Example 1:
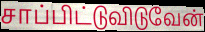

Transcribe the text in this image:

சாப்பிட்டுவிடுவேன்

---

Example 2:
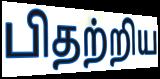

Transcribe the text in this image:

பிதற்றிய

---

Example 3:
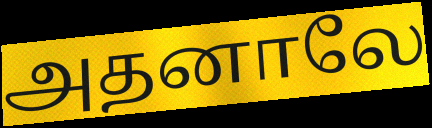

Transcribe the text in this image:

அதனாலே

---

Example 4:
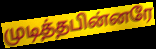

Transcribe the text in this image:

முடித்தபின்னரே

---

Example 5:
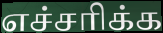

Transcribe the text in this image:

எச்சரிக்க